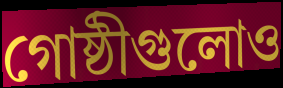
গোষ্ঠীগুলোও